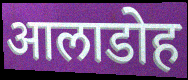
आलाडोह